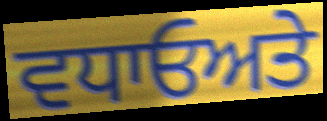
ਵਧਾਓਅਤੇ